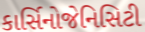
કાર્સિનોજેનિસિટી